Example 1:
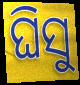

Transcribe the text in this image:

ଘିସୁ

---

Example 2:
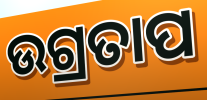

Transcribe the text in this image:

ଉଗ୍ରତାପ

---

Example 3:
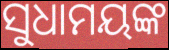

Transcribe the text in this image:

ସୁଧାମୟଙ୍କ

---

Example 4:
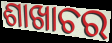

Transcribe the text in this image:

ଶାଖାଚର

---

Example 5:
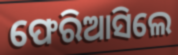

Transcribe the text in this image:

ଫେରିଆସିଲେ